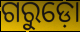
ଗରୁଡ଼ୋ